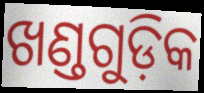
ଖଣ୍ଡଗୁଡ଼ିକ